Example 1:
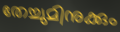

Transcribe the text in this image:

തേച്ചുമിനുക്കും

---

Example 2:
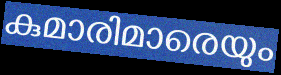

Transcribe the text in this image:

കുമാരിമാരെയും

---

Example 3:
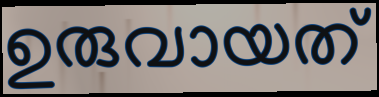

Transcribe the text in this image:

ഉരുവായത്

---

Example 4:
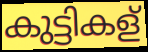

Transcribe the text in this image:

കുട്ടികള്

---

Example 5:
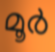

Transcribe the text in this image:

മൂർ